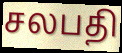
சலபதி